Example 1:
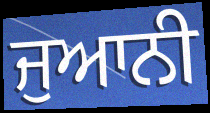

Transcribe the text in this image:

ਜੁਆਨੀ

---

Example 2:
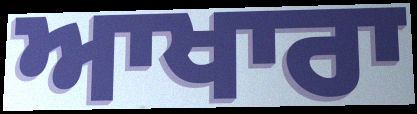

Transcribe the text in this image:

ਆਖਾਰਾ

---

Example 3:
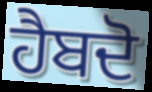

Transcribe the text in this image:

ਹੈਬਦੋ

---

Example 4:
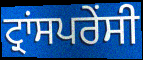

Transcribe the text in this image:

ਟ੍ਰਾਂਸਪਰੇਂਸੀ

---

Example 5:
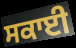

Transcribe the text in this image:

ਸਕਾਈ